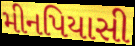
મીનપિયાસી